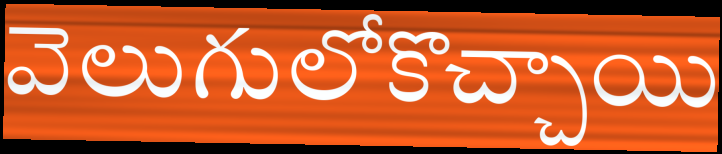
వెలుగులోకొచ్చాయి